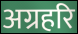
अग्रहरि